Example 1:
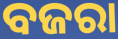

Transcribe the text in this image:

ବଜରା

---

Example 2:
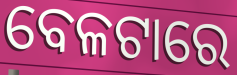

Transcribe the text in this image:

ବେଳଟାରେ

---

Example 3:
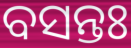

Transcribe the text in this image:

ବସନ୍ତଃ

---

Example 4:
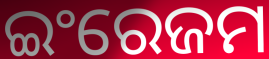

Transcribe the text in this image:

ଇଂରେଜମ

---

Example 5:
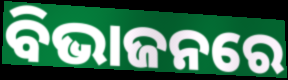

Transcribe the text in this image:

ବିଭାଜନରେ